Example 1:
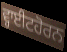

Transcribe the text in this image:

ਵ੍ਹਾਈਟਹੋਰਨ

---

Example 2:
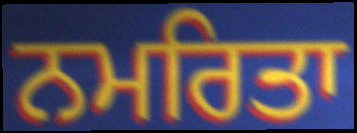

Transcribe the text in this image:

ਨਮਰਿਤਾ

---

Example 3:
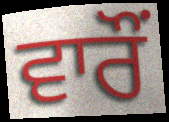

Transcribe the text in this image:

ਵਾਰੌਂ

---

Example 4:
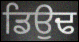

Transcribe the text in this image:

ਡਿਉਢ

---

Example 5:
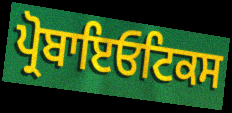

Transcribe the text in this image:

ਪ੍ਰੋਬਾਇਓਟਿਕਸ